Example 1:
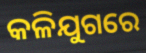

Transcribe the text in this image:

କଳିଯୁଗରେ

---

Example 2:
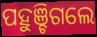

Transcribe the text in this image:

ପହୁଞ୍ଚିଗଲେ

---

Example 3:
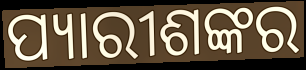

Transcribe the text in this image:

ପ୍ୟାରୀଶଙ୍କର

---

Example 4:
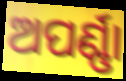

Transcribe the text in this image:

ଅପର୍ଣ୍ଣା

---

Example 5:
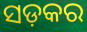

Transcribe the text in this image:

ସଡ଼କର